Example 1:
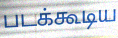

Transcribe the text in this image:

படக்கூடிய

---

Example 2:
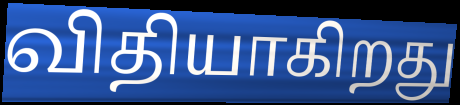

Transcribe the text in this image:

விதியாகிறது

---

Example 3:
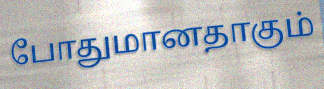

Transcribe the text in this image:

போதுமானதாகும்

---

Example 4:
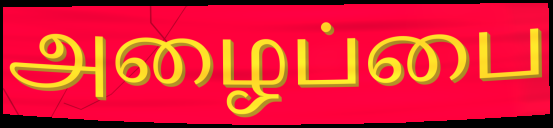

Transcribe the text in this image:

அழைப்பை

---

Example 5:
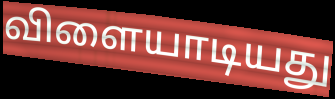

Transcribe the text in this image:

விளையாடியது